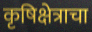
कृषिक्षेत्राचा